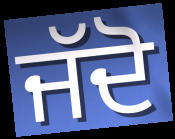
ਜੱਦੋ